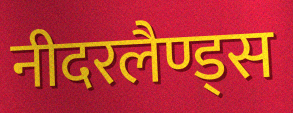
नीदरलैण्ड्स